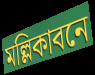
মল্লিকাবনে